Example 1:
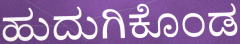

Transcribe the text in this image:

ಹುದುಗಿಕೊಂಡ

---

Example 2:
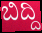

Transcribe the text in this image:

ಬಿದ್ದಿ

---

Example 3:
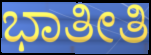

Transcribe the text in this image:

ಭಾತೀತಿ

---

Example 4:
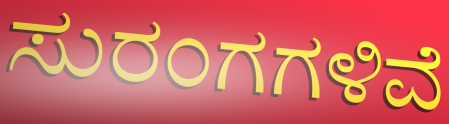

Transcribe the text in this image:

ಸುರಂಗಗಳಿವೆ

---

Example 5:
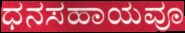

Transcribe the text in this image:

ಧನಸಹಾಯವೂ